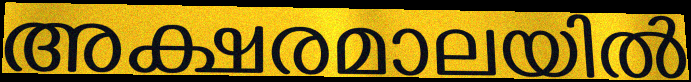
അക്ഷരമാലയിൽ